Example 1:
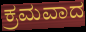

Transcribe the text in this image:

ಕ್ರಮವಾದ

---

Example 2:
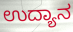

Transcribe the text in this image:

ಉದ್ಯಾನ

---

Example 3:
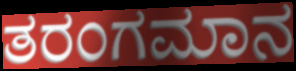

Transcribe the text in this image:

ತರಂಗಮಾನ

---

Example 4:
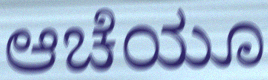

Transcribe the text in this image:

ಆಚೆಯೂ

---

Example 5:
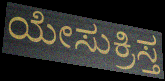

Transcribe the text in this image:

ಯೇಸುಕ್ರಿಸ್ತ